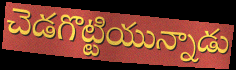
చెడగొట్టియున్నాడు